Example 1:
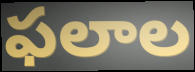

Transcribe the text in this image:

ఫలాల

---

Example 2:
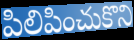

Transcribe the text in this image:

పిలిపించుకొని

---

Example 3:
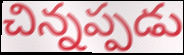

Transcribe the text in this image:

చిన్నప్పడు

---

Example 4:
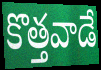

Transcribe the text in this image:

కొత్తవాడే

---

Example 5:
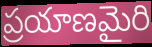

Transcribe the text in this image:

ప్రయాణమైరి